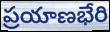
ప్రయాణభేరి